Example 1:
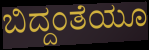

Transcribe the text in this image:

ಬಿದ್ದಂತೆಯೂ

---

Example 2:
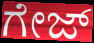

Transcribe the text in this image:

ಗೇಜ್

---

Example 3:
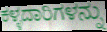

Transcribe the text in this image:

ಕಳ್ಳದಾರಿಗಳನ್ನು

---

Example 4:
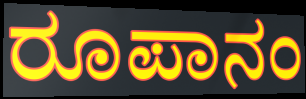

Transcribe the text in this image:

ರೂಪಾನಂ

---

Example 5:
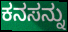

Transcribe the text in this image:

ಕನಸನ್ನು